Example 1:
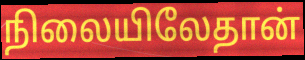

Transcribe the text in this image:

நிலையிலேதான்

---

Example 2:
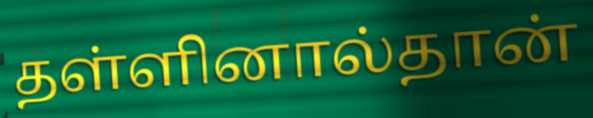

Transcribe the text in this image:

தள்ளினால்தான்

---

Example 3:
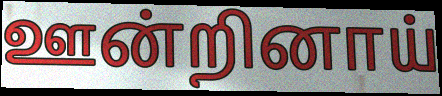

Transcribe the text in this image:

ஊன்றினாய்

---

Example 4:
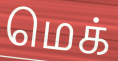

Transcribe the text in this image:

மெக்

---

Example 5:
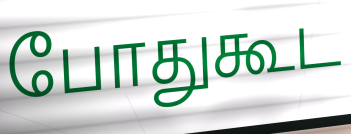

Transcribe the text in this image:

போதுகூட